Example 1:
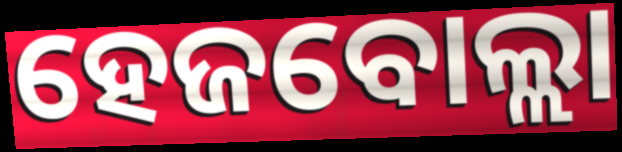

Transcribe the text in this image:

ହେଜବୋଲ୍ଲା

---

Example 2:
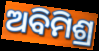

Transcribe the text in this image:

ଅବିମିଶ୍ର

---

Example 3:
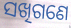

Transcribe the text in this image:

ସଖିଗଣେ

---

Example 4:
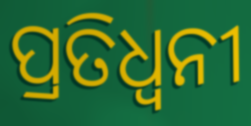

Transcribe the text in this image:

ପ୍ରତିଧ୍ଵନୀ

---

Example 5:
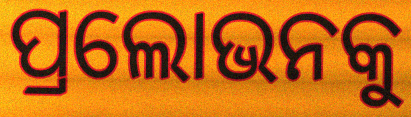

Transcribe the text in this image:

ପ୍ରଲୋଭନକୁ